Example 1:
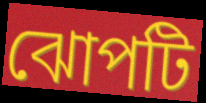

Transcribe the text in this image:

ঝোপটি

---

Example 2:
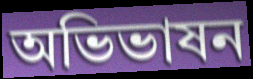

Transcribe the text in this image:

অভিভাষন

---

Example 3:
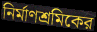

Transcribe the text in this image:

নির্মাণশ্রমিকের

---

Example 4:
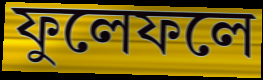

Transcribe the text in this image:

ফুলেফলে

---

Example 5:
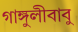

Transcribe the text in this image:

গাঙ্গুলীবাবু